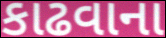
કાઢવાના